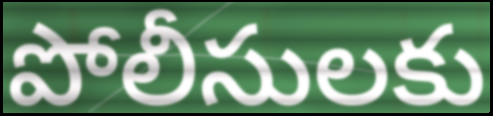
పోలీసులకు